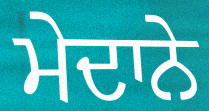
ਮੇਦਾਨੇ